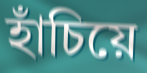
হাঁচিয়ে